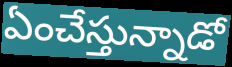
ఏంచేస్తున్నాడో